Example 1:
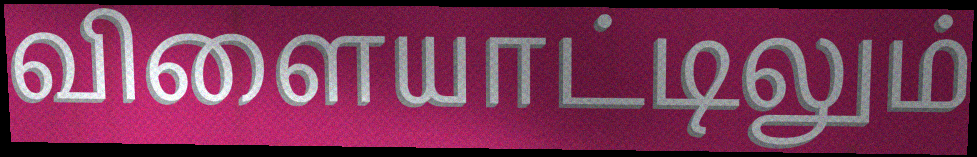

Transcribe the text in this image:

விளையாட்டிலும்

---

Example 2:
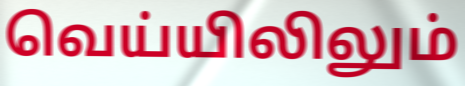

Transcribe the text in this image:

வெய்யிலிலும்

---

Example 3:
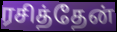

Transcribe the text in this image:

ரசித்தேன்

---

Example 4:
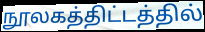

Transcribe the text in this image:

நூலகத்திட்டத்தில்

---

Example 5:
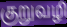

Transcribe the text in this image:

குறுவழி